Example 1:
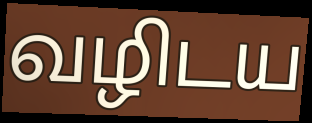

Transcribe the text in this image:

வழிடய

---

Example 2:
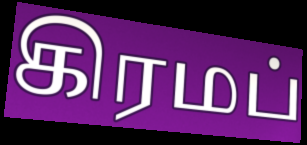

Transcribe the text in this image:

கிரமப்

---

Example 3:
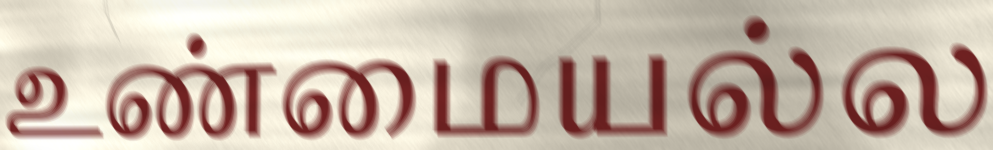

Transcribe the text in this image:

உண்மையல்ல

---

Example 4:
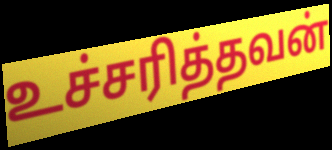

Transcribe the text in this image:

உச்சரித்தவன்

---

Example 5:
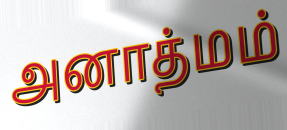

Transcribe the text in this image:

அனாத்மம்